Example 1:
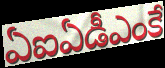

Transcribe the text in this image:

ఏఐఏడీఎంకే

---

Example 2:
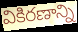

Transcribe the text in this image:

వికిరణాన్ని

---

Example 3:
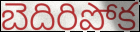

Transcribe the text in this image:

బెదిరిపోక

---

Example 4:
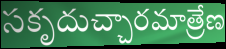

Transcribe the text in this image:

సకృదుచ్చారమాత్రేణ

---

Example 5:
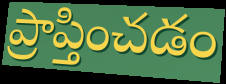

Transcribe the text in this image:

ప్రాప్తించడం